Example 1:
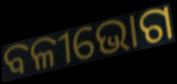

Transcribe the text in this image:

ବଳୀଭୋଗ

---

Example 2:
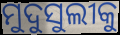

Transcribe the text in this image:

ମୁଦୁସୁଲୀକୁ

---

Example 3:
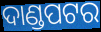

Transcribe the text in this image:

ଦାଣ୍ଡପଟର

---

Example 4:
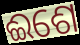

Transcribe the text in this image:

ଈଶେ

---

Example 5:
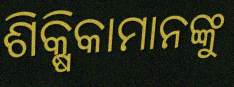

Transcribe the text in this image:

ଶିକ୍ଷିକାମାନଙ୍କୁ